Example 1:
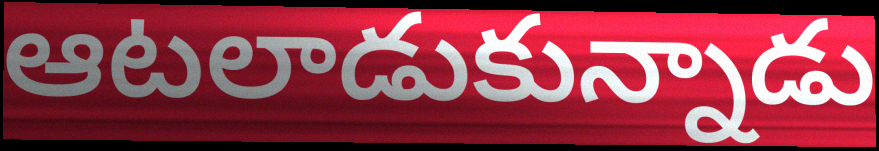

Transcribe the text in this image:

ఆటలాడుకున్నాడు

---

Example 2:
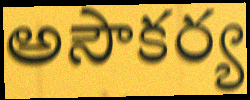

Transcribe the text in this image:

అసౌకర్య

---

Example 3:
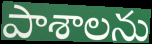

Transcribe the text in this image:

పాశాలను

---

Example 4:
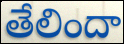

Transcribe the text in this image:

తేలిందా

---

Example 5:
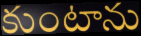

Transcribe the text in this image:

కుంటాను